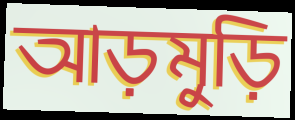
আড়মুড়ি